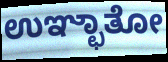
ಉಞ್ಛಾತೋ